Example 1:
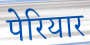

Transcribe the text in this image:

पेरियार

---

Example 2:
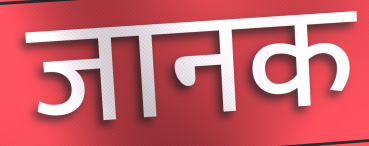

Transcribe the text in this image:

जानक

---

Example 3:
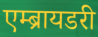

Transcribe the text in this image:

एम्ब्रायडरी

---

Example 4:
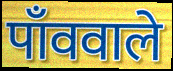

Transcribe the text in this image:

पाँववाले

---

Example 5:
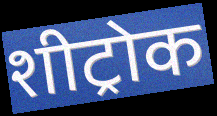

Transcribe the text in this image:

शीट्रोक